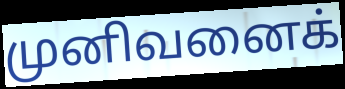
முனிவனைக்